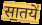
सा॒तये॑